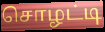
சொழட்டி